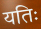
यतिः